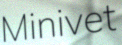
Minivet